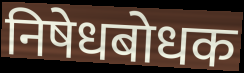
निषेधबोधक